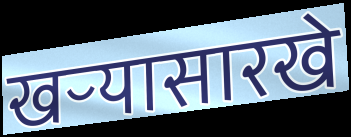
खऱ्यासारखे